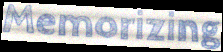
Memorizing